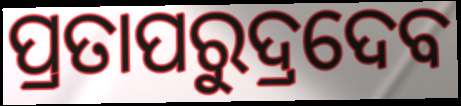
ପ୍ରତାପରୁଦ୍ରଦେବ